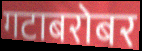
गटाबरोबर